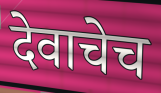
देवाचेच